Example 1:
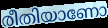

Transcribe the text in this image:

രീതിയാണോ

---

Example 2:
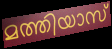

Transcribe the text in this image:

മത്തിയാസ്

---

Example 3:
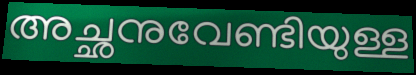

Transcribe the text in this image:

അച്ഛനുവേണ്ടിയുള്ള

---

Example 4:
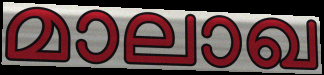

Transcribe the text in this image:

മാലാഖ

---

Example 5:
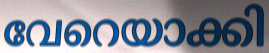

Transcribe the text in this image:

വേറെയാക്കി